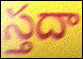
స్తదా